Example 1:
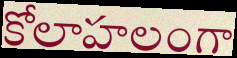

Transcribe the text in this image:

కోలాహలంగా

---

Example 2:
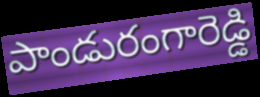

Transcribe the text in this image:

పాండురంగారెడ్డి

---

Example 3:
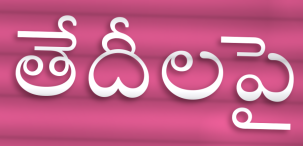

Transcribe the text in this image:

తేదీలపై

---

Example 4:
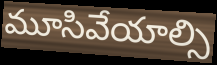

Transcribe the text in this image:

మూసివేయాల్సి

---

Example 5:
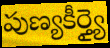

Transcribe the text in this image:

పుణ్యకీర్త్యై